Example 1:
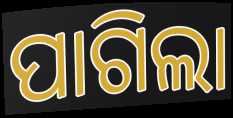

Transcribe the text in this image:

ପାଗିଲା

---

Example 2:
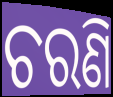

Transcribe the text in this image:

ଚରଣି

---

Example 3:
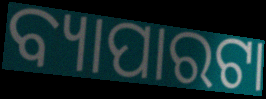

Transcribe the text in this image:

ବ୍ୟାପାରଟା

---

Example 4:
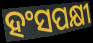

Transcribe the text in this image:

ହଂସପକ୍ଷୀ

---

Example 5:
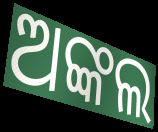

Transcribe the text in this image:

ଅଙ୍କଲ